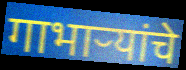
गाभाऱ्यांचे